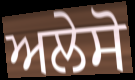
ਅਲੇਸੋ